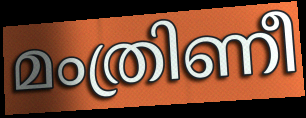
മംത്രിണീ